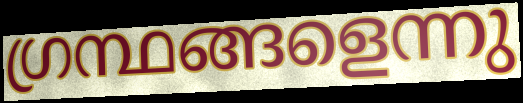
ഗ്രന്ഥങ്ങളെന്നു